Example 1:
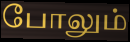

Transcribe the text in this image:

போலும்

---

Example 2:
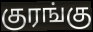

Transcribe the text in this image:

குரங்கு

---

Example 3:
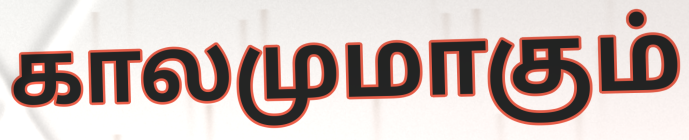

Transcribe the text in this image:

காலமுமாகும்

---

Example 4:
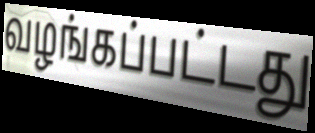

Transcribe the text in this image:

வழங்கப்பட்டது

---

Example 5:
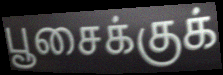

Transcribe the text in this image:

பூசைக்குக்